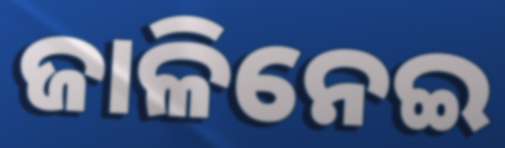
ଜାଳିନେଇ